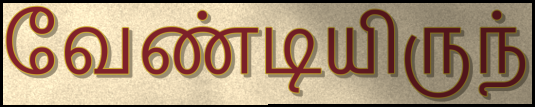
வேண்டியிருந்